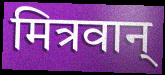
मित्रवान्